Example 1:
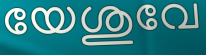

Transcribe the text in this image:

യേശുവേ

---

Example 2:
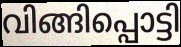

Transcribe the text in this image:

വിങ്ങിപ്പൊട്ടി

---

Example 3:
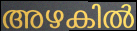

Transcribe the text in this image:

അഴകിൽ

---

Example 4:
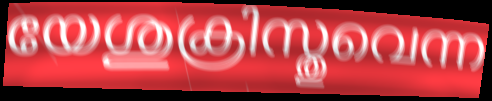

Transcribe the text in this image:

യേശുക്രിസ്തുവെന്ന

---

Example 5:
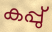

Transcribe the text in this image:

കപ്പു്